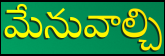
మేనువాల్చి